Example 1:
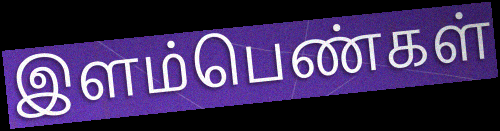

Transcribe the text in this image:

இளம்பெண்கள்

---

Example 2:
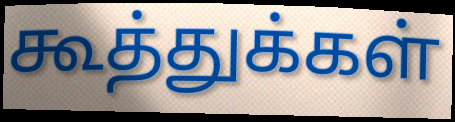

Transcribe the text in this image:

கூத்துக்கள்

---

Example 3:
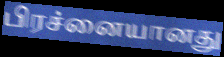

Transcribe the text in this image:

பிரச்னையானது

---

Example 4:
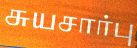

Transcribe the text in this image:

சுயசார்பு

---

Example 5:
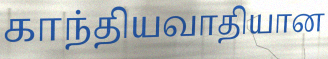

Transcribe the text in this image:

காந்தியவாதியான